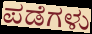
ಪಡೆಗಳು